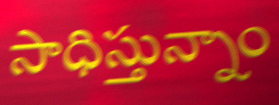
సాధిస్తున్నాం